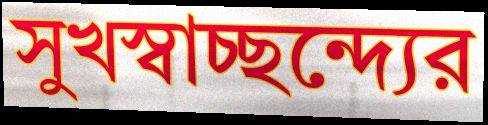
সুখস্বাচ্ছন্দ্যের